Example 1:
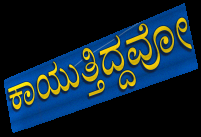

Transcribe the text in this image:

ಕಾಯುತ್ತಿದ್ದವೋ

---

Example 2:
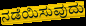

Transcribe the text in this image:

ನಡೆಯಿಸುವುದು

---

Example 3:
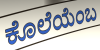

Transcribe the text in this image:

ಕೊಲೆಯೆಂಬ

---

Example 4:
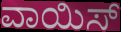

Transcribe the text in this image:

ವಾಯಿಸ್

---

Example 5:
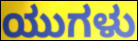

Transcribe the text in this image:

ಯುಗಳು